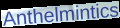
Anthelmintics